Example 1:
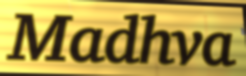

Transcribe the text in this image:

Madhva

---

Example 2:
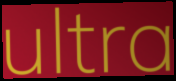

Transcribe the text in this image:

ultra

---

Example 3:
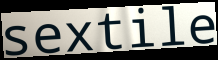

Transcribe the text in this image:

sextile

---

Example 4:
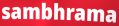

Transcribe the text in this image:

sambhrama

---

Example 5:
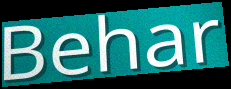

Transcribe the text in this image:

Behar